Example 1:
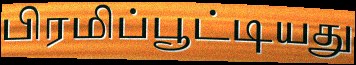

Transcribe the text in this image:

பிரமிப்பூட்டியது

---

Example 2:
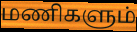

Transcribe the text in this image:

மணிகளும்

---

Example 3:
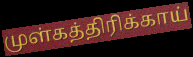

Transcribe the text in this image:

முள்கத்திரிக்காய்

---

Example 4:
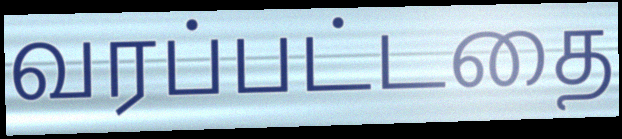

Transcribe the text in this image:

வரப்பட்டதை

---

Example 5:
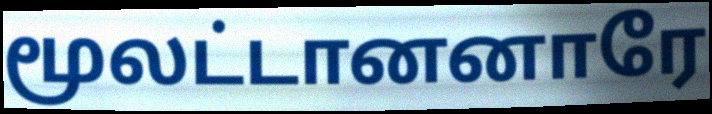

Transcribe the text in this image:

மூலட்டானனாரே